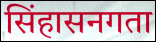
सिंहासनगता